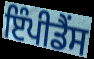
ਇੰਪੀਡੈਂਸ